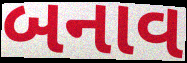
બનાવ